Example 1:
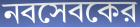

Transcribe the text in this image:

নবসেবকের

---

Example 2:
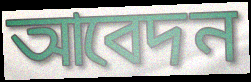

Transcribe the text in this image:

আবেদন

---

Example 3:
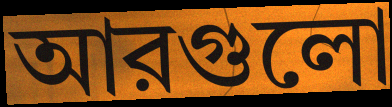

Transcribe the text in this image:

আরগুলো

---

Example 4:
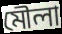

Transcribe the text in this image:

মৌলা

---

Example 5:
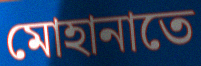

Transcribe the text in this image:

মোহানাতে